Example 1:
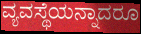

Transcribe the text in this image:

ವ್ಯವಸ್ಥೆಯನ್ನಾದರೂ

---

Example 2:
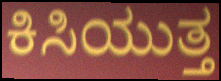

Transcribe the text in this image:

ಕಿಸಿಯುತ್ತ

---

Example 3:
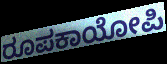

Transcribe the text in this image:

ರೂಪಕಾಯೋಪಿ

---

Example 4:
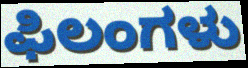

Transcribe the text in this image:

ಫಿಲಂಗಳು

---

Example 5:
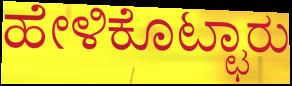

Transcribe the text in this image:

ಹೇಳಿಕೊಟ್ಟಾರು